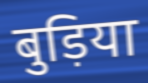
बुड़िया